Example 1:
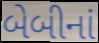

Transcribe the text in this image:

બેબીનાં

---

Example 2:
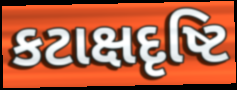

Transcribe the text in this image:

કટાક્ષદૃષ્ટિ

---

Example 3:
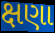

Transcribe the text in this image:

ક્ષણા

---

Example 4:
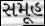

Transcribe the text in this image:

સમૂહ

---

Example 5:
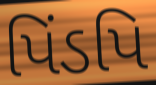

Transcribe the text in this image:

પિંડપિ